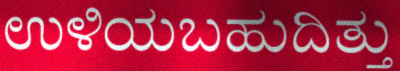
ಉಳಿಯಬಹುದಿತ್ತು